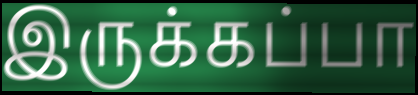
இருக்கப்பா